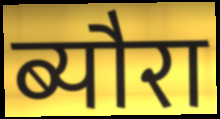
ब्यौरा